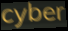
cyber